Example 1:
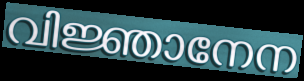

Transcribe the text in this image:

വിജ്ഞാനേന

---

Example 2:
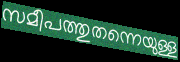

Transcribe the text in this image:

സമീപത്തുതന്നെയുള്ള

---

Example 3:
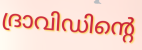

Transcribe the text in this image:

ദ്രാവിഡിന്റെ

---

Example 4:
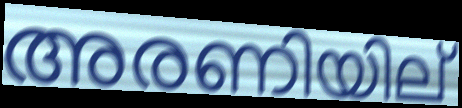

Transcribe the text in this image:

അരണിയില്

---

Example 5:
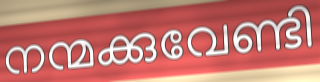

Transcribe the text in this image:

നന്മക്കുവേണ്ടി